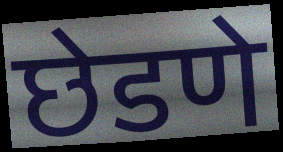
छेडणे